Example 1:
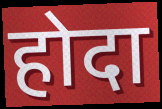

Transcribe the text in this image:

होदा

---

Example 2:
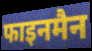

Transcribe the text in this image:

फाइनमैन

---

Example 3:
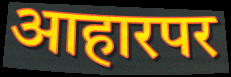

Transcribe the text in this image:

आहारपर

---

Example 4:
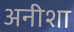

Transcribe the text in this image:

अनीशा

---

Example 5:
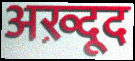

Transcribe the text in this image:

अख़्दूद